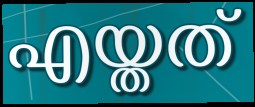
എയ്തത്